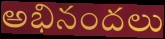
అభినందలు